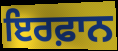
ਇਰਫ਼ਾਨ